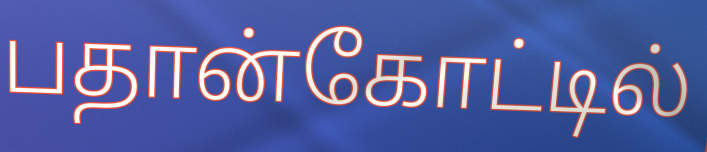
பதான்கோட்டில்